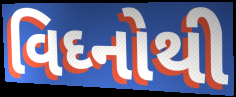
વિઘ્નોથી